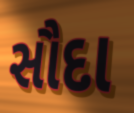
સૌદા